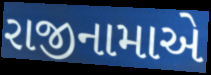
રાજીનામાએ